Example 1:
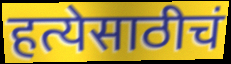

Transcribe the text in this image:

हत्येसाठीचं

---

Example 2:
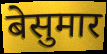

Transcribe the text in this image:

बेसुमार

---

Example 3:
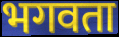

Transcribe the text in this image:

भगवता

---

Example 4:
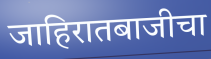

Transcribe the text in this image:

जाहिरातबाजीचा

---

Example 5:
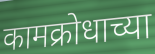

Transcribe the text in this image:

कामक्रोधाच्या